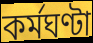
কৰ্মঘণ্টা